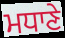
ਮਧਾਣੇ